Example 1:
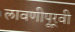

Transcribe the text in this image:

लावणीपूर्वी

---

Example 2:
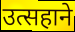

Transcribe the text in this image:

उत्सहाने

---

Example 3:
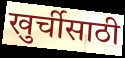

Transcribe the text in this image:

खुर्चीसाठी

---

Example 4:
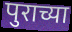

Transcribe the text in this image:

पुराच्या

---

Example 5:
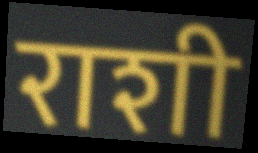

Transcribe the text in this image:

राशी